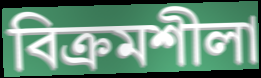
বিক্রমশীলা